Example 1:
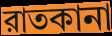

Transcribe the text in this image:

রাতকানা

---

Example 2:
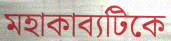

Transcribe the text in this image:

মহাকাব্যটিকে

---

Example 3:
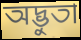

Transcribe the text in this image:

অদ্ভুতা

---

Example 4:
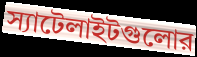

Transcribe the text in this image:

স্যাটেলাইটগুলোর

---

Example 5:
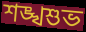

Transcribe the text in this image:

শঙ্খশুভ